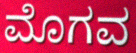
ಮೊಗವ